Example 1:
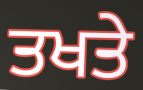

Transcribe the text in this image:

ਤਖਤੇ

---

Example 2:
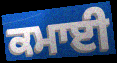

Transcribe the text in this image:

ਕਮਾਈ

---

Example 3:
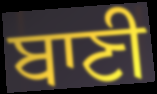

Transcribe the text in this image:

ਬਾਣੀ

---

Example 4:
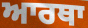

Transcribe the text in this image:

ਆਰਥਾ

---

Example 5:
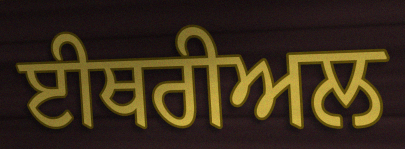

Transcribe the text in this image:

ਈਥਰੀਅਲ